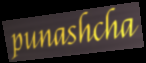
punashcha